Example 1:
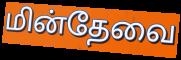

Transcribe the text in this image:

மின்தேவை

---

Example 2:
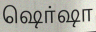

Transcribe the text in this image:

ஷெர்ஷா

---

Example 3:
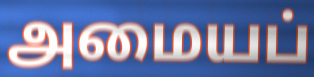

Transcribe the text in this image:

அமையப்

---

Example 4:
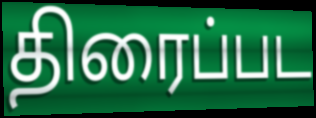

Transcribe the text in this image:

திரைப்பட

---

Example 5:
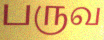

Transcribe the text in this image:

பருவ